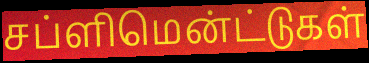
சப்ளிமென்ட்டுகள்